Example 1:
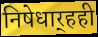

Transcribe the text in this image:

निषेधार्हही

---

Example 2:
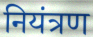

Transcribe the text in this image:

नियंत्रण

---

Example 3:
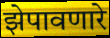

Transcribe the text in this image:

झेपावणारे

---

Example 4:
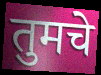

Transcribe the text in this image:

तुमचे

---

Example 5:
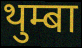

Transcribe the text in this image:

थुम्बा